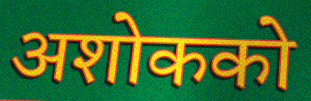
अशोकको